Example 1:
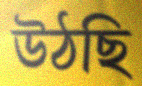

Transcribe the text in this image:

উঠছি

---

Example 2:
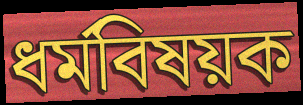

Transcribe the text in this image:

ধর্মবিষয়ক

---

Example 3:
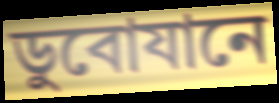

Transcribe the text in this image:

ডুবোযানে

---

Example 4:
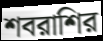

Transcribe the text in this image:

শবরাশির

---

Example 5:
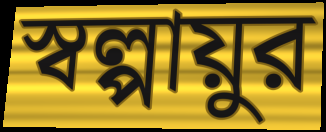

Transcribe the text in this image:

স্বল্পায়ুর